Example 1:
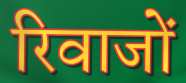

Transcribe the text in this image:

रिवाजों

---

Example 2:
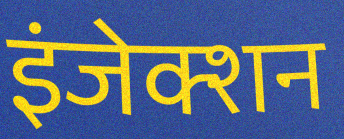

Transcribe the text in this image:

इंजेक्शन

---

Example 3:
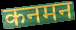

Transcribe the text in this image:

कनमन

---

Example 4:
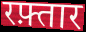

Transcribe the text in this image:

रफ़्तार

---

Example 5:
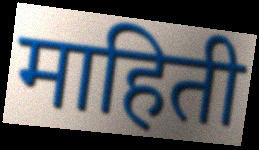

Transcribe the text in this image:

माहिती